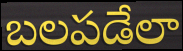
బలపడేలా